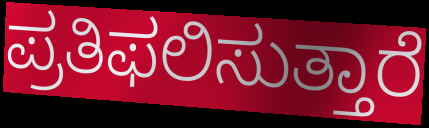
ಪ್ರತಿಫಲಿಸುತ್ತಾರೆ